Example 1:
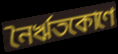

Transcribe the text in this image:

নৈর্ঋতকোণে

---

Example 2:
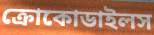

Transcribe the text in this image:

ক্রোকোডাইলস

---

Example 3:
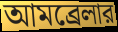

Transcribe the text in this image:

আমব্রেলার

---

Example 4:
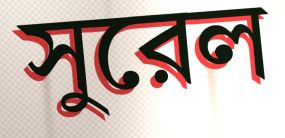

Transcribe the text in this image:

সুরেল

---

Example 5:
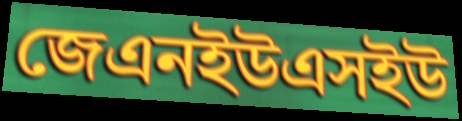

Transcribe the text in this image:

জেএনইউএসইউ